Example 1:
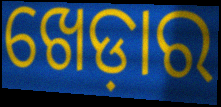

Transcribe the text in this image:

ଖେଡ଼ାର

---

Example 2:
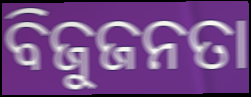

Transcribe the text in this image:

ବିଜୁଜନତା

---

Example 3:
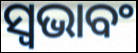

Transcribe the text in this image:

ସ୍ଵଭାବଂ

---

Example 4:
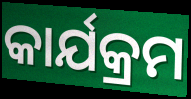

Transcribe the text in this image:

କାର୍ଯକ୍ରମ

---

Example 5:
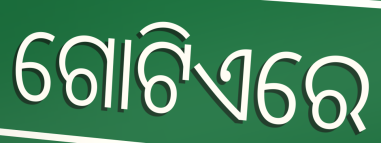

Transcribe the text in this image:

ଗୋଟିଏରେ